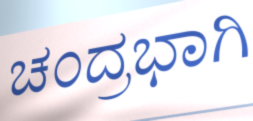
ಚಂದ್ರಭಾಗಿ